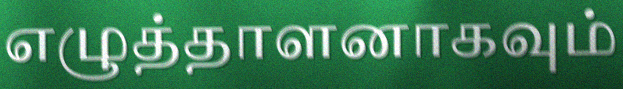
எழுத்தாளனாகவும்